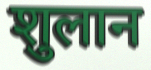
शुलान